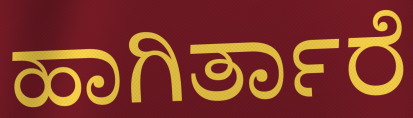
ಹಾಗಿರ್ತಾರೆ